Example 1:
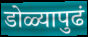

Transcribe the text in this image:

डोळ्यापुढं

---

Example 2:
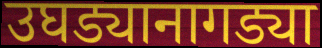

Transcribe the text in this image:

उघड्यानागड्या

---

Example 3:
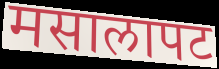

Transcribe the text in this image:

मसालापट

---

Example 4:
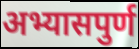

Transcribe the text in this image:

अभ्यासपुर्ण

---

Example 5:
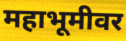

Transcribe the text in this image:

महाभूमीवर